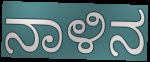
ನಾಳಿನ